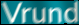
Vrund